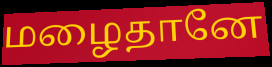
மழைதானே